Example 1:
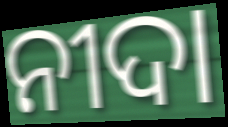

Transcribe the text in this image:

ନୀଦା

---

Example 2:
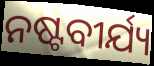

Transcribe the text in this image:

ନଷ୍ଟବୀର୍ଯ୍ୟ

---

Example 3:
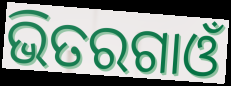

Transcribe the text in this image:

ଭିତରଗାଓଁ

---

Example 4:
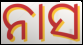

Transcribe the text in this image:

ନାସ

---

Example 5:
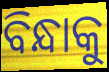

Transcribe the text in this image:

ବିନ୍ଧାକୁ